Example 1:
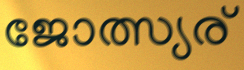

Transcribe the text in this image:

ജോത്സ്യര്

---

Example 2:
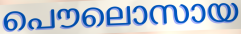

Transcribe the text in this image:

പൌലൊസായ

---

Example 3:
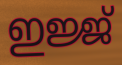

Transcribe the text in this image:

ഇജ്ജ്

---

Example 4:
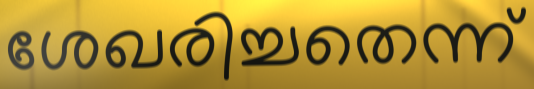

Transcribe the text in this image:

ശേഖരിച്ചതെന്ന്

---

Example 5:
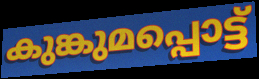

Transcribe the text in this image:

കുങ്കുമപ്പൊട്ട്